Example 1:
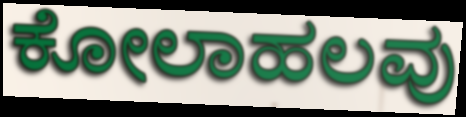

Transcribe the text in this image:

ಕೋಲಾಹಲವು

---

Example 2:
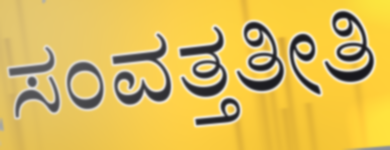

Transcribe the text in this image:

ಸಂವತ್ತತೀತಿ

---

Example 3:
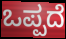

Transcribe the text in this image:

ಒಪ್ಪದೆ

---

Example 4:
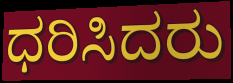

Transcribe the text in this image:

ಧರಿಸಿದರು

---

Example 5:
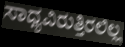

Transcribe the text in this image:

ಸಾಧ್ಯವಿರುತ್ತಿರಲಿಲ್ಲ